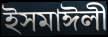
ইসমাঈলী